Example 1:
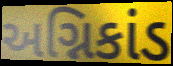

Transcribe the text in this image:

અગ્નિકાંડ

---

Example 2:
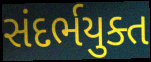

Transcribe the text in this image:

સંદર્ભયુક્ત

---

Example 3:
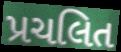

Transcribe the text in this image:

પ્રચલિત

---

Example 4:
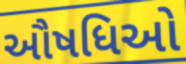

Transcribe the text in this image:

ઔષધિઓ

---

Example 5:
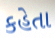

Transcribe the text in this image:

કહેતા